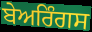
ਬੇਅਰਿੰਗਸ